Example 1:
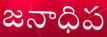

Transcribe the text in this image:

జనాధిప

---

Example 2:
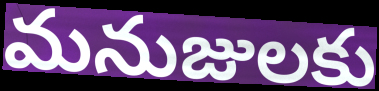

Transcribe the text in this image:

మనుజులకు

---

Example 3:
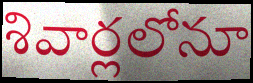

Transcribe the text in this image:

శివార్లలోనూ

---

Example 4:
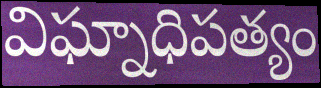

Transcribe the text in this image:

విఘ్నాధిపత్యం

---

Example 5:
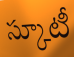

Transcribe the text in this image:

స్కూటీ